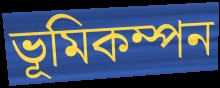
ভূমিকম্পন